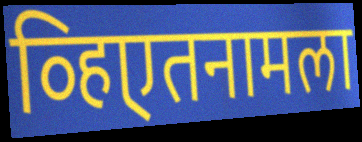
व्हिएतनामला